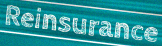
Reinsurance